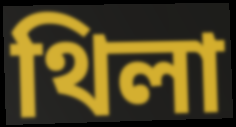
থিলা